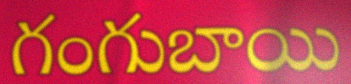
గంగుబాయి